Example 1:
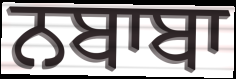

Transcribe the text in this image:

ਨਬਾਬਾ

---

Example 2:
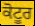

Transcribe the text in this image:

ਕੋਟੂਰ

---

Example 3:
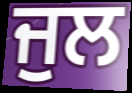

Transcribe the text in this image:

ਜੁਲ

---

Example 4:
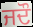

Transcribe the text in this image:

ਜਦੌ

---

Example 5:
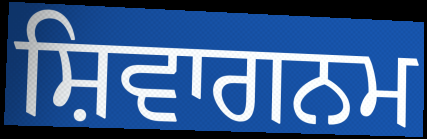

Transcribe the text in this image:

ਸ਼ਿਵਾਗਨਮ